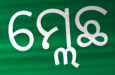
ମ୍ଲେଛ